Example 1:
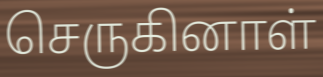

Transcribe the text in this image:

செருகினாள்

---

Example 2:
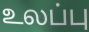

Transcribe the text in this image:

உலப்பு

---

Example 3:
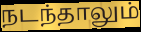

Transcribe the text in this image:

நடந்தாலும்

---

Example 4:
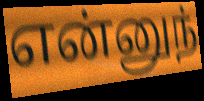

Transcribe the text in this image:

என்னுந்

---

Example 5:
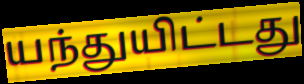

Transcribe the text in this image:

யந்துயிட்டது